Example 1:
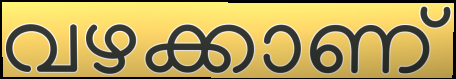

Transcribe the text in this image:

വഴക്കാണ്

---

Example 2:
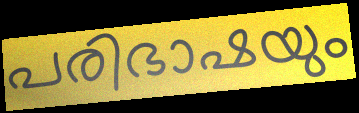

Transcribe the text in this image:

പരിഭാഷയും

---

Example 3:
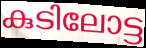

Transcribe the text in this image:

കുടിലോട്ട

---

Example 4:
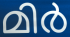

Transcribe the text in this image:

മിർ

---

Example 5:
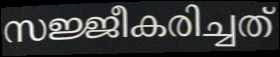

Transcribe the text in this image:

സജ്ജീകരിച്ചത്